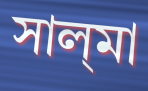
সাল্‌মা